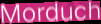
Morduch